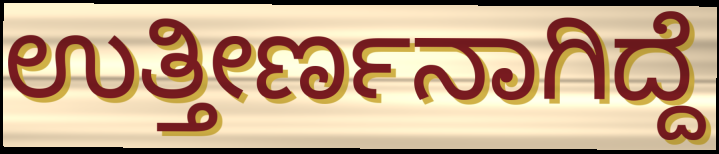
ಉತ್ತೀರ್ಣನಾಗಿದ್ದೆ